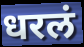
धरलं